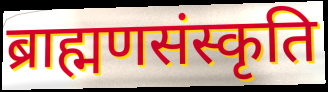
ब्राह्मणसंस्कृति